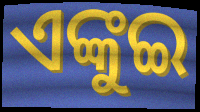
ଏଙ୍କୁଇ